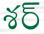
శర్